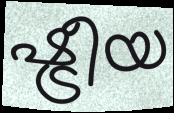
ഷ്ട്രീയ